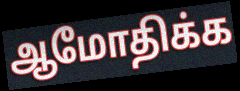
ஆமோதிக்க